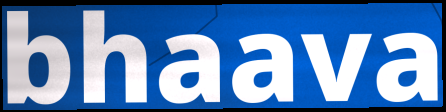
bhaava